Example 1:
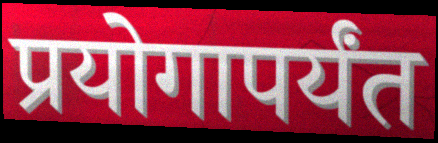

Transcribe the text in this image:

प्रयोगापर्यंत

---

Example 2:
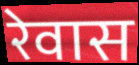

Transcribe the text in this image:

रेवास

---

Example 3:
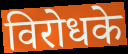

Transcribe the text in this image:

विरोधके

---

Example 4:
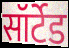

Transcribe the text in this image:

सॉर्टेड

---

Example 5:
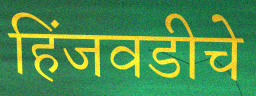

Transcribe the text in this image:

हिंजवडीचे